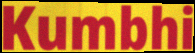
Kumbhi